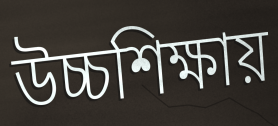
উচ্চশিক্ষায়